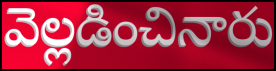
వెల్లడించినారు